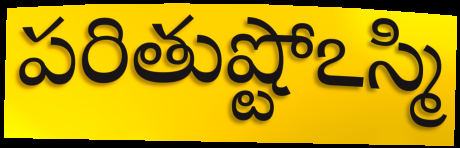
పరితుష్టోఽస్మి